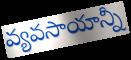
వ్యవసాయాన్నీ